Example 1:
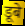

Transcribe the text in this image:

डूबे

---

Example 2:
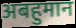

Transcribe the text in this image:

अबहुमान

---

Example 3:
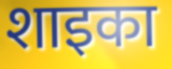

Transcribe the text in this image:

शाइका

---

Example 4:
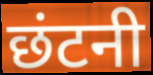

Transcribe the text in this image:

छंटनी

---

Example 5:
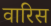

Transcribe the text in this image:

वारिस